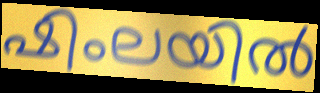
ഷിംലയിൽ